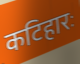
कटिहारः